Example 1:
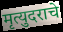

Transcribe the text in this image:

मृत्युदराचे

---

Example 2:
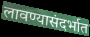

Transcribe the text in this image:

लावण्यासंदर्भात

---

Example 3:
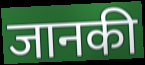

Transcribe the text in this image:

जानकी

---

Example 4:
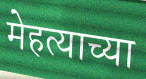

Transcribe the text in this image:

मेहत्याच्या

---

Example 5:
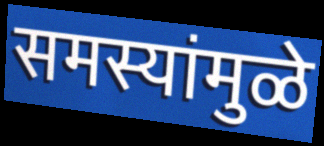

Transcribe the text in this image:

समस्यांमुळे